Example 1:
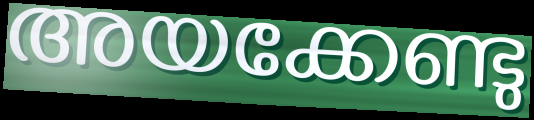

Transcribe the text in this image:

അയക്കേണ്ടു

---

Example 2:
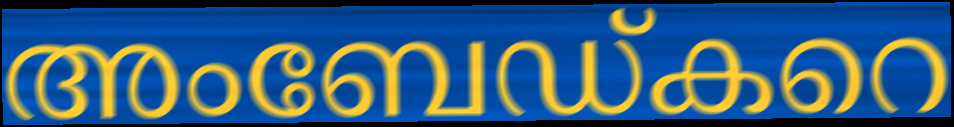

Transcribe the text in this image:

അംബേഡ്കറെ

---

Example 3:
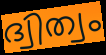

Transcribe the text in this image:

ദ്വിത്വം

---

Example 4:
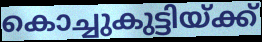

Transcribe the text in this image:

കൊച്ചുകുട്ടിയ്ക്ക്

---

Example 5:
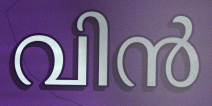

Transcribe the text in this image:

വിൻ